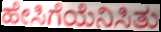
ಹೇಸಿಗೆಯೆನಿಸಿತು